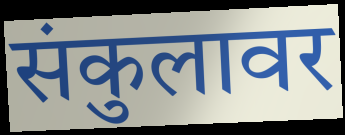
संकुलावर